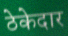
ठेकेदार